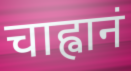
चाह्वानं